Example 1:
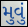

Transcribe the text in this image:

મુવું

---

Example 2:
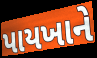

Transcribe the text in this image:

પાયખાને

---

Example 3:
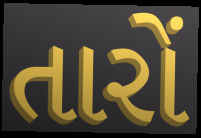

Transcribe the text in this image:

તારોં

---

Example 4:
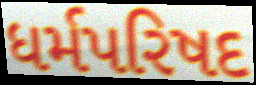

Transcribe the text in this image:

ધર્મપરિષદ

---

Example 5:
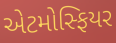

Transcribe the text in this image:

એટમોસ્ફિયર